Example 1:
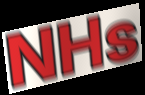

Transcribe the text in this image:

NHs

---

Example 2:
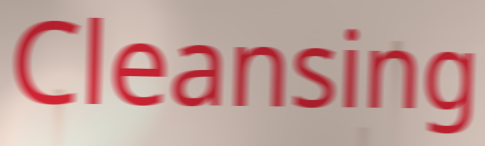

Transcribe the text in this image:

Cleansing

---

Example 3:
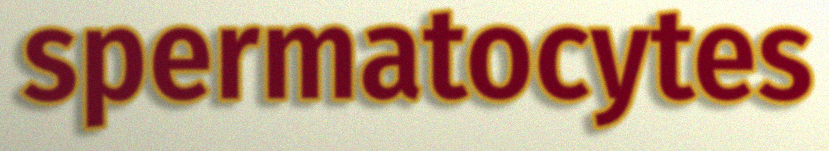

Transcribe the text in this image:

spermatocytes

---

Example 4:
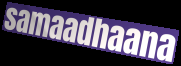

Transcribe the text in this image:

samaadhaana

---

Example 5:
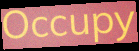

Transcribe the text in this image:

Occupy